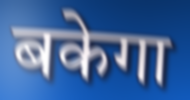
बकेगा